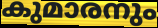
കുമാരനും